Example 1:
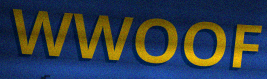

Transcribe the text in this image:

WWOOF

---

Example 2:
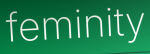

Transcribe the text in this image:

feminity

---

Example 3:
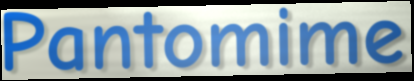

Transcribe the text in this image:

Pantomime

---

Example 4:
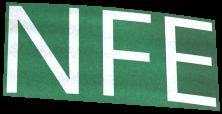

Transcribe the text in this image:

NFE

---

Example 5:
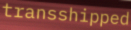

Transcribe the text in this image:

transshipped